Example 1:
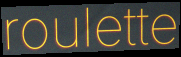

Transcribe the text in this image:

roulette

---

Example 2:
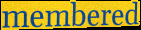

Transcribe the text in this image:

membered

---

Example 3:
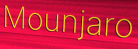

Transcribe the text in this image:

Mounjaro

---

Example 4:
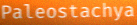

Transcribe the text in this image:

Paleostachya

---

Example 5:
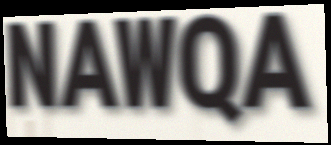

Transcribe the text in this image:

NAWQA